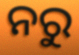
ନରୁ